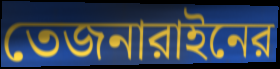
তেজনারাইনের